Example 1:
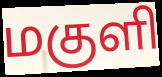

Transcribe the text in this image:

மகுளி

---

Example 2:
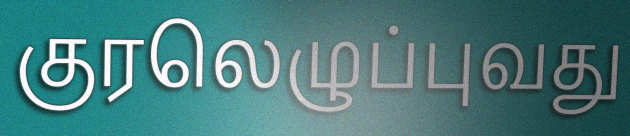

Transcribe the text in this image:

குரலெழுப்புவது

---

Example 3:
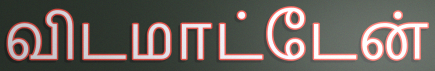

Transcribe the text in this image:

விடமாட்டேன்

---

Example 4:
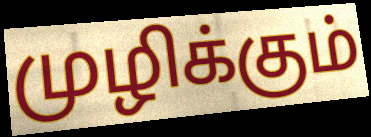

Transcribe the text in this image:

முழிக்கும்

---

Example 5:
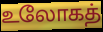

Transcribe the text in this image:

உலோகத்